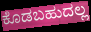
ಕೊಡಬಹುದಲ್ಲ